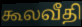
கூலவீதி